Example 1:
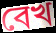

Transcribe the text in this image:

বেখ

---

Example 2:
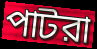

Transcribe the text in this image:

পাটরা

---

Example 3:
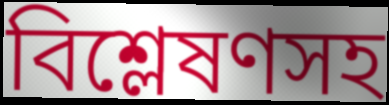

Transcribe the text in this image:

বিশ্লেষণসহ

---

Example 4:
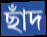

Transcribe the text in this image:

ছাঁদ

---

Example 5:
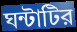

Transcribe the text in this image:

ঘন্টাটির